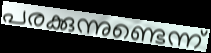
പരക്കുന്നുണ്ടെന്ന്